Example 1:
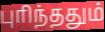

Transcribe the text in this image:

புரிந்ததும்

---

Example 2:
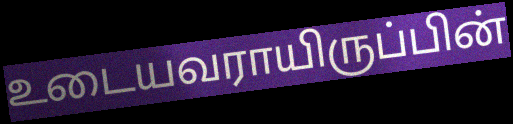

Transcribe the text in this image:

உடையவராயிருப்பின்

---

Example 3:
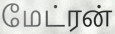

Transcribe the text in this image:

மேட்ரன்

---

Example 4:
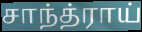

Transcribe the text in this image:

சாந்த்ராய்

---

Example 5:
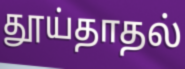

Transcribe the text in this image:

தூய்தாதல்